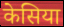
केसिया